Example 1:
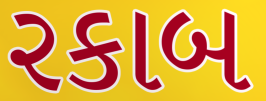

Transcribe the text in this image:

રકાબ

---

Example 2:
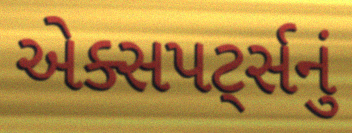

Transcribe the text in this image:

એક્સપર્ટ્સનું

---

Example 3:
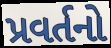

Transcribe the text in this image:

પ્રવર્તનો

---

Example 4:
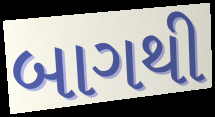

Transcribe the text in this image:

બાગથી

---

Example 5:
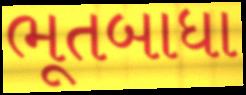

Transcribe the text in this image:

ભૂતબાધા